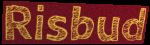
Risbud